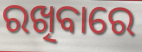
ରଖିବାରେ